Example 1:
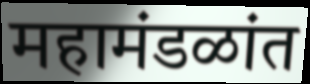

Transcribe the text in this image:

महामंडळांत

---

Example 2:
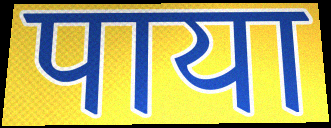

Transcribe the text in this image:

पाया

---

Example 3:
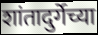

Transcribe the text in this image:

शांतादुर्गेच्या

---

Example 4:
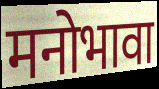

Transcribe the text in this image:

मनोभावा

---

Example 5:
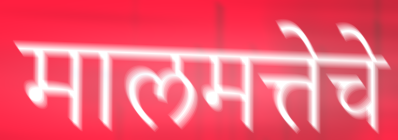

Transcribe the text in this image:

मालमत्तेचे